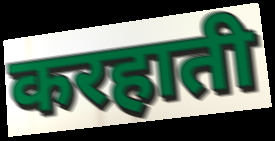
करहाती